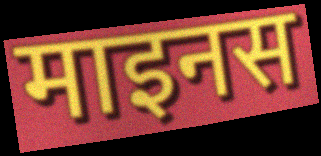
माइनस